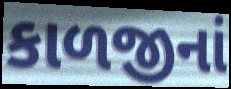
કાળજીનાં